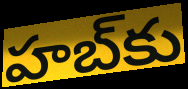
హబ్‌కు